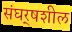
संघर्षशील